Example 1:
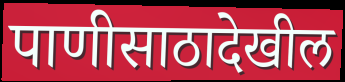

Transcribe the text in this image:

पाणीसाठादेखील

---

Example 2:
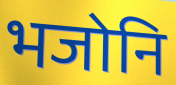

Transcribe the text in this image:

भजोनि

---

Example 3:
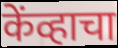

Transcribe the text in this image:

केंव्हाचा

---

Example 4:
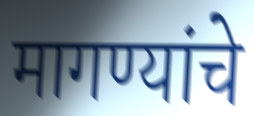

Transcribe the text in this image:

मागण्यांचे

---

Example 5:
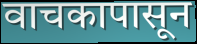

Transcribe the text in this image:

वाचकापासून